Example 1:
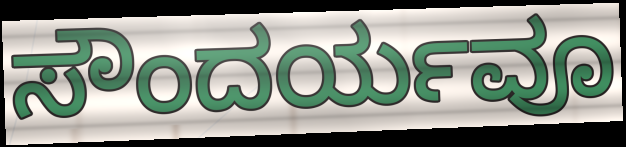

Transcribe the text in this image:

ಸೌಂದರ್ಯವೂ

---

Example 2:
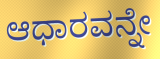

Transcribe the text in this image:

ಆಧಾರವನ್ನೇ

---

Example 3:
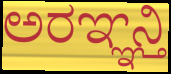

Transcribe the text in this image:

ಅರಞ್ಞನ್ತಿ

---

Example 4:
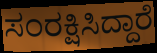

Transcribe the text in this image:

ಸಂರಕ್ಷಿಸಿದ್ದಾರೆ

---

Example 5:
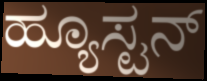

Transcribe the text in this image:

ಹ್ಯೂಸ್ಟನ್